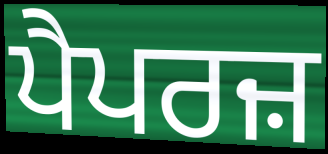
ਪੈਪਰਜ਼